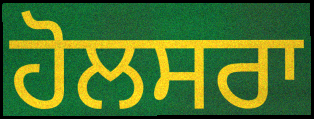
ਹੋਲਸਰਾ